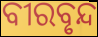
ବୀରବୃନ୍ଦ